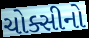
ચોક્સીનો